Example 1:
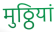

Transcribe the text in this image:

मुठ्ठियां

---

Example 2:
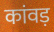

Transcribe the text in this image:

कांवड़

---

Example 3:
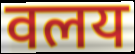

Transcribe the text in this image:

वलय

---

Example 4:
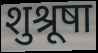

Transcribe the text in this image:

शुश्रूषा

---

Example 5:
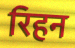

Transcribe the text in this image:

रिहन